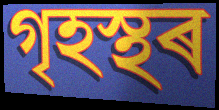
গৃহস্থৰ